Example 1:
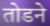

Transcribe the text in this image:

तोडने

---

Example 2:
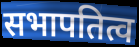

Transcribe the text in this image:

सभापतित्व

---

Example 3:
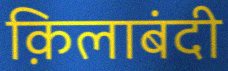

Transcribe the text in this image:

क़िलाबंदी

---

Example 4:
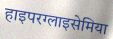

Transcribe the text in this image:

हाइपरग्लाइसेमिया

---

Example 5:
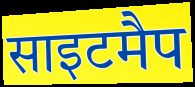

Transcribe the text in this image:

साइटमैप